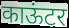
काऊंटर